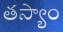
తస్యాం